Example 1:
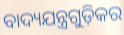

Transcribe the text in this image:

ବାଦ୍ୟଯନ୍ତ୍ରଗୁଡ଼ିକର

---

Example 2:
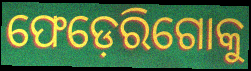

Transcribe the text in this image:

ଫେଡ଼େରିଗୋକୁ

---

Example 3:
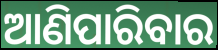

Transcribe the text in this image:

ଆଣିପାରିବାର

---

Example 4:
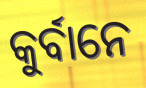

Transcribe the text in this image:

କୁର୍ବାନେ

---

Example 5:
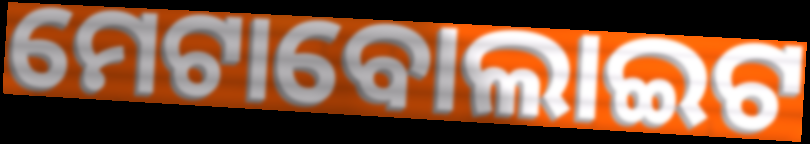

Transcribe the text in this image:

ମେଟାବୋଲାଇଟ